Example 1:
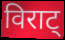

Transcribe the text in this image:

विराट्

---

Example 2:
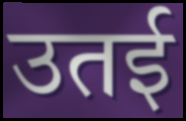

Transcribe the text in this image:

उतई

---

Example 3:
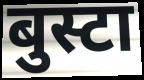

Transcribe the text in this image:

बुस्टा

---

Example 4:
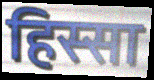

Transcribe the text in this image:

हिस्सा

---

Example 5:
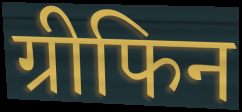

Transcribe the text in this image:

ग्रीफिन